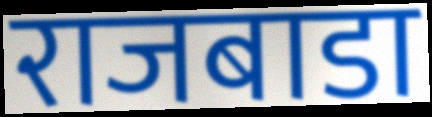
राजबाडा